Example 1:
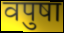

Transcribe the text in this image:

वपुषा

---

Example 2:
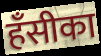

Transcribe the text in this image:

हँसीका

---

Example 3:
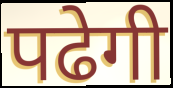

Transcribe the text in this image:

पढेगी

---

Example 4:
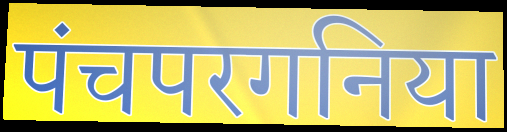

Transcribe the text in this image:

पंचपरगनिया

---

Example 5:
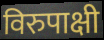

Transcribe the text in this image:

विरुपाक्षी